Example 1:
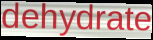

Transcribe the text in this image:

dehydrate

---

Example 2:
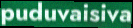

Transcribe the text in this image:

puduvaisiva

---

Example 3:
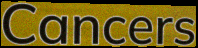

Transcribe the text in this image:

Cancers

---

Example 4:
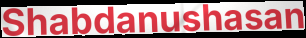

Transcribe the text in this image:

Shabdanushasan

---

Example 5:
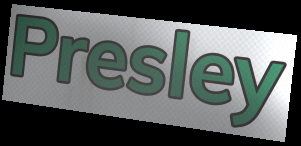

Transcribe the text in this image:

Presley